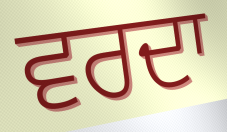
ਵਰਦਾ